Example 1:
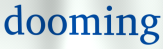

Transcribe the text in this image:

dooming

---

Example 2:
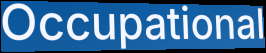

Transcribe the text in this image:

Occupational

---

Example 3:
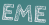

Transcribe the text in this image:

EME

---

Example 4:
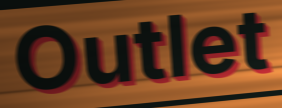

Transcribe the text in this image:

Outlet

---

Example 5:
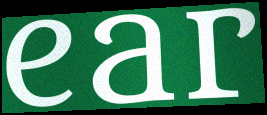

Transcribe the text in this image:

ear